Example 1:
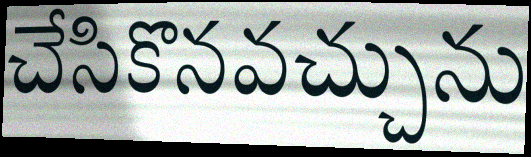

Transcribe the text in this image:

చేసికొనవచ్చును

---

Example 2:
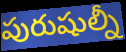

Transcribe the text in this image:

పురుషుల్నీ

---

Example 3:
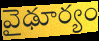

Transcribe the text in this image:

వైఢూర్యం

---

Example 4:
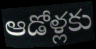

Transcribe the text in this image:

ఆడోళ్లకు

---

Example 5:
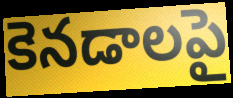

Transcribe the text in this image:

కెనడాలపై